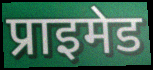
प्राइमेड